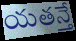
యతన్తే